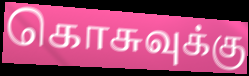
கொசுவுக்கு